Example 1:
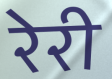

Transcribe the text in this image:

रेरी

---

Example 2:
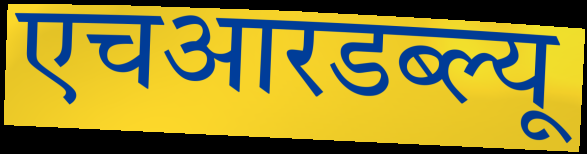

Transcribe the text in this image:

एचआरडब्ल्यू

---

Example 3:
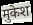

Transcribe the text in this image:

मुकेश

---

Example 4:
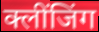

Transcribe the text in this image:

क्लींजिंग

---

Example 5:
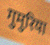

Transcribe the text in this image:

गुमुरिया